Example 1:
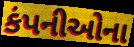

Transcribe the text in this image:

કંપનીઓના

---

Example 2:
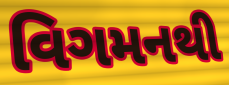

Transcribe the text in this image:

વિગમનથી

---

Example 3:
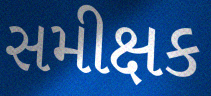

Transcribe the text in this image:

સમીક્ષક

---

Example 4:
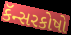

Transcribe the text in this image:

કૅન્સરકોષો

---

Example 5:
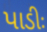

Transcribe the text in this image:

પાડીઃ